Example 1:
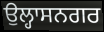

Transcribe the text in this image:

ਉਲ੍ਹਾਸਨਗਰ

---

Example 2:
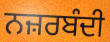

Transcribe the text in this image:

ਨਜ਼ਰਬੰਦੀ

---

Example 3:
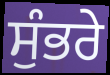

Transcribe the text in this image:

ਸੁੰਭਰੇ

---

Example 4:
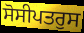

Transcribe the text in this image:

ਸੋਸੀਪਤਰੁਸ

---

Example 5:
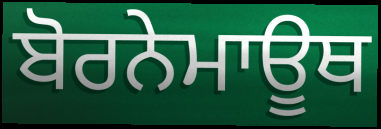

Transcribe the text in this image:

ਬੋਰਨੇਮਾਊਥ